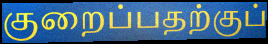
குறைப்பதற்குப்